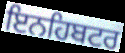
ਇਨਹਿਬਟਰ